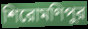
শিরোমণিপুর